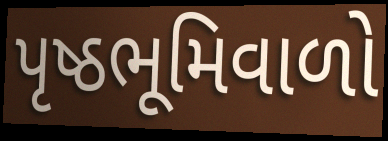
પૃષ્ઠભૂમિવાળો